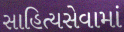
સાહિત્યસેવામાં